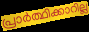
പ്രാർത്ഥിക്കാറില്ല